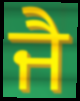
ਜੈ